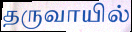
தருவாயில்